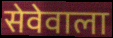
सेवेवाला